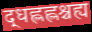
द्धह्लह्लश्चह्य